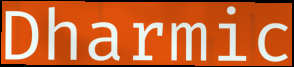
Dharmic